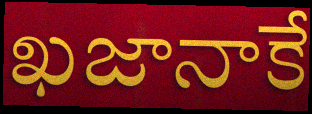
ఖజానాకే